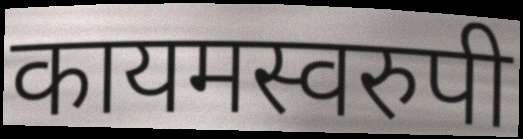
कायमस्वरुपी